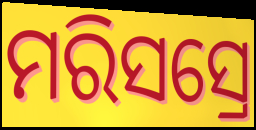
ମରିସସ୍ରେ